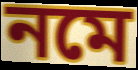
নমে